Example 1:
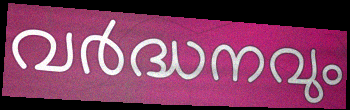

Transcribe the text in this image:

വർദ്ധനവും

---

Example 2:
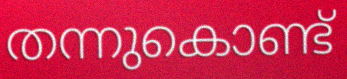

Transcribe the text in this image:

തന്നുകൊണ്ട്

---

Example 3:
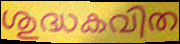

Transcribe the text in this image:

ശുദ്ധകവിത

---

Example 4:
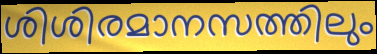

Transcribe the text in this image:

ശിശിരമാനസത്തിലും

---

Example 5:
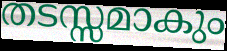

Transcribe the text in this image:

തടസ്സമാകും